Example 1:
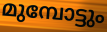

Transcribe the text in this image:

മുമ്പോട്ടും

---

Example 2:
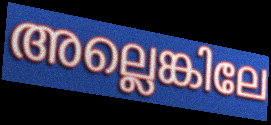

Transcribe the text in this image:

അല്ലെങ്കിലേ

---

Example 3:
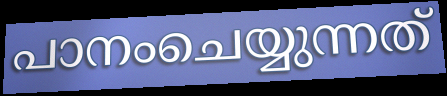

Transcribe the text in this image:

പാനംചെയ്യുന്നത്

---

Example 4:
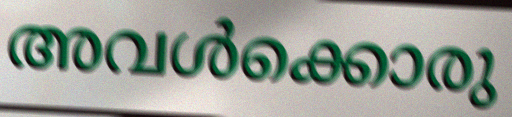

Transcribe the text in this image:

അവൾക്കൊരു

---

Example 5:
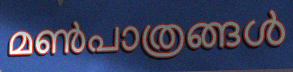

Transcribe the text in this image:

മൺപാത്രങ്ങൾ